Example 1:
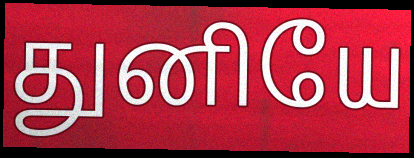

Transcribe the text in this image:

துனியே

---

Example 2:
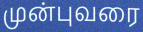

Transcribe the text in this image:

முன்புவரை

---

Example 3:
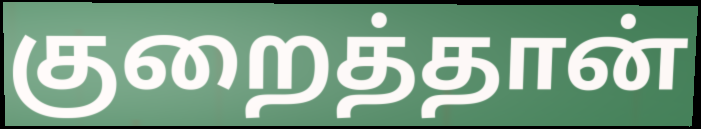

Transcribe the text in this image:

குறைத்தான்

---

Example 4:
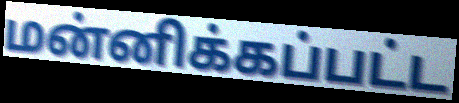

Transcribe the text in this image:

மன்னிக்கப்பட்ட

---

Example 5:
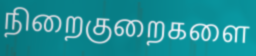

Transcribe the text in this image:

நிறைகுறைகளை